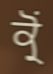
ਕ੍ਰੋਂ